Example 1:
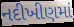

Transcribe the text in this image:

નદીખીણમાં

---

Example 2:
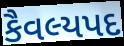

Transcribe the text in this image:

કૈવલ્યપદ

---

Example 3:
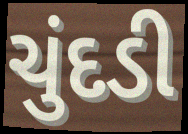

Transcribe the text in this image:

ચુંદડી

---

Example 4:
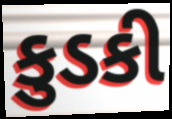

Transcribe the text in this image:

કુડકી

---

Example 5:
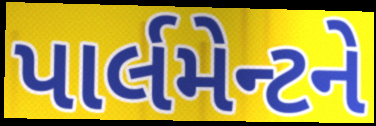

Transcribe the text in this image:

પાર્લમેન્ટને